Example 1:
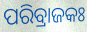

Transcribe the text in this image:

ପରିବ୍ରାଜକଃ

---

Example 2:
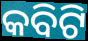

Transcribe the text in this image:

କବିଟି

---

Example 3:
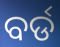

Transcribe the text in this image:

ବର୍ଡ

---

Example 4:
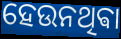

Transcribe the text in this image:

ହେଉନଥିଵା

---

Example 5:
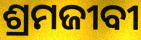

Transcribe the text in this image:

ଶ୍ରମଜୀବୀ